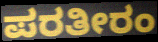
ಪರತೀರಂ